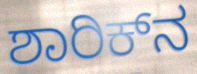
ಶಾರಿಕ್‌ನ